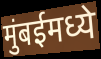
मुंबईमध्ये